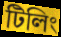
টিলিং